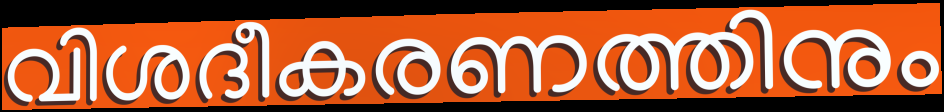
വിശദീകരണത്തിനും